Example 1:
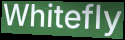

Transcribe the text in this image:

Whitefly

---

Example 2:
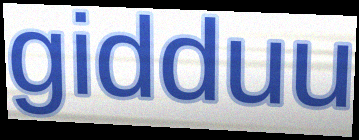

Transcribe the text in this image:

gidduu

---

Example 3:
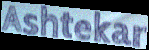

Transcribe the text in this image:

Ashtekar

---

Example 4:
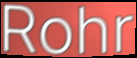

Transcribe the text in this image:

Rohr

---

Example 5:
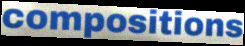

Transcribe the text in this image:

compositions